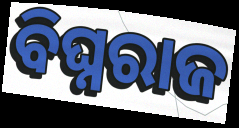
ବିଘ୍ନରାଜ